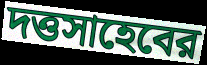
দত্তসাহেবের